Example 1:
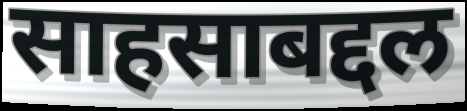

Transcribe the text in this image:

साहसाबद्दल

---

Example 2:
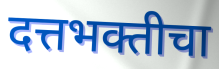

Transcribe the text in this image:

दत्तभक्तीचा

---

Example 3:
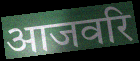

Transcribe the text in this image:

आजवरि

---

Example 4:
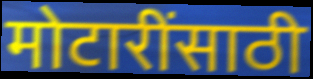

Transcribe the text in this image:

मोटारींसाठी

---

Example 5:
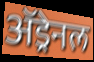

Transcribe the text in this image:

ॲड्रेनल